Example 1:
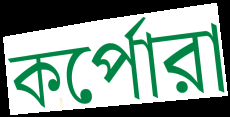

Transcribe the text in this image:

কর্পোরা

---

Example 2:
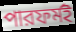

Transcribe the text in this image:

পারফর্মই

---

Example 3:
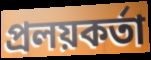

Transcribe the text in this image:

প্রলয়কর্তা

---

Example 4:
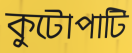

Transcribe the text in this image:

কুটোপাটি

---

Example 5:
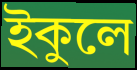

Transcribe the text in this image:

ইকুলে